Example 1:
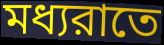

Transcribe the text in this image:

মধ্যরাতে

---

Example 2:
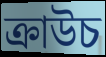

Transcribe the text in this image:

ক্রাউচ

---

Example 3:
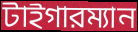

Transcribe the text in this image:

টাইগারম্যান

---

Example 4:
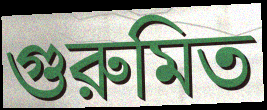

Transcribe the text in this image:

গুরুমিত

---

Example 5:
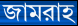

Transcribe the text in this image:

জামরাহ